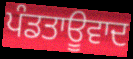
ਪੰਡਤਾਊਵਾਦ